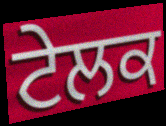
ਟੇਲਕ